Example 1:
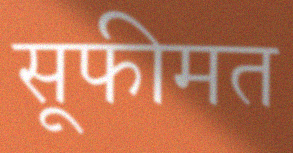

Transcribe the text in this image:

सूफीमत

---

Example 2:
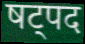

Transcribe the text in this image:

षट्पद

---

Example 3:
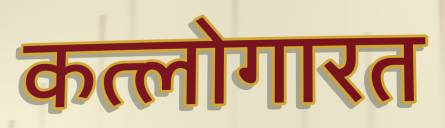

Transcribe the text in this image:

कत्लोगारत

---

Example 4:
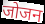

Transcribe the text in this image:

जोजन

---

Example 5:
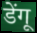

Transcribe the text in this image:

डेंगू